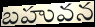
బహువన